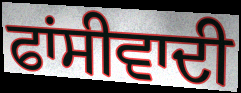
ਫਾਂਸੀਵਾਦੀ